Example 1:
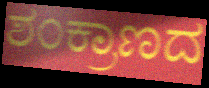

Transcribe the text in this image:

ಶಂಕ್ರಾಣದ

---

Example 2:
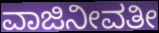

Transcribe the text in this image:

ವಾಜಿನೀವತೀ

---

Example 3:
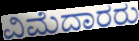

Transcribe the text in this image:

ವಿಮೆದಾರರು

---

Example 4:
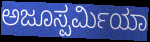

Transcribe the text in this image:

ಅಜೂಸ್ಪರ್ಮಿಯಾ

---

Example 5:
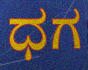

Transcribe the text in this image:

ಧಗ